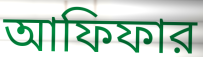
আফিফার